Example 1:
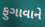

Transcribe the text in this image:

ફુગાવાને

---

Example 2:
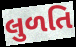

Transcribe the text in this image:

લુળતિ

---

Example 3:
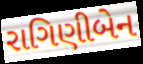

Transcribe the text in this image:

રાગિણીબેન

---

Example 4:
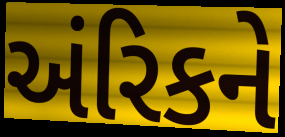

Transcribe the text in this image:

અંરિકને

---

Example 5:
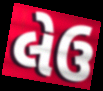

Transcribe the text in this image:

લેઉ